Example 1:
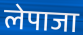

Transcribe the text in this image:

लेपाजा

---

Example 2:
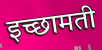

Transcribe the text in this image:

इच्छामती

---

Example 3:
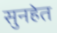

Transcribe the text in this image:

सुनहेत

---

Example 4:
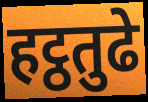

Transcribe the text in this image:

हट्ठतुढे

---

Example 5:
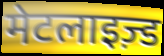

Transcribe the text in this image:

मेटलाइज़्ड